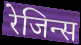
रेजिन्स